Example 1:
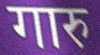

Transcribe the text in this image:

गारु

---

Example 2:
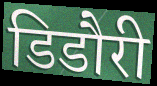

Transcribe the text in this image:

डिडौरी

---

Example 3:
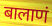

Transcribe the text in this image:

बालाणं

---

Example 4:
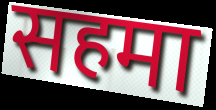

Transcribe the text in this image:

सहमा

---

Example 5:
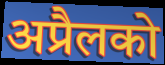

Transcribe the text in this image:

अप्रैलको